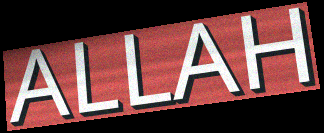
ALLAH